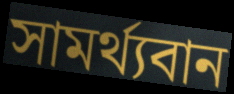
সামর্থ্যবান